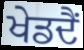
ਖੇਡਦੈਂ